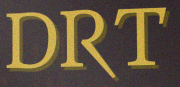
DRT